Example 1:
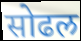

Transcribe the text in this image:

सोढल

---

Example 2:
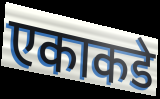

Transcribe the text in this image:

एकाकडे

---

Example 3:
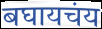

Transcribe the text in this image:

बघायचंय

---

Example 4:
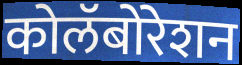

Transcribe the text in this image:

कोलॅबोरेशन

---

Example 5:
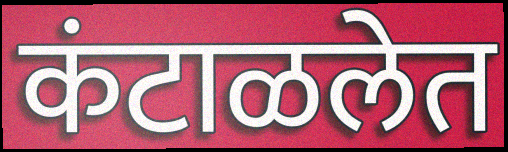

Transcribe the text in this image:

कंटाळलेत